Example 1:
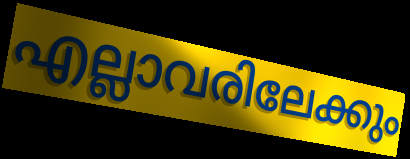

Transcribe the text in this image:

എല്ലാവരിലേക്കും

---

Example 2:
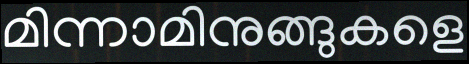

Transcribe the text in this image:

മിന്നാമിനുങ്ങുകളെ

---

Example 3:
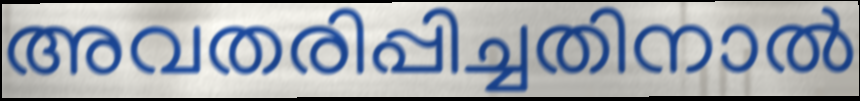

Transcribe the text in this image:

അവതരിപ്പിച്ചതിനാൽ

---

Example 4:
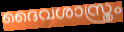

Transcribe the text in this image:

ദൈവശാസ്ത്രം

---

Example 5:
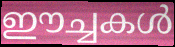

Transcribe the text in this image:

ഈച്ചകൾ